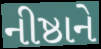
નીષ્ઠાને